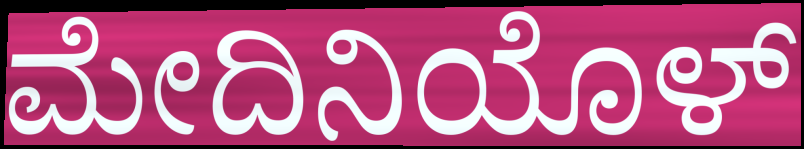
ಮೇದಿನಿಯೊಳ್